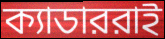
ক্যাডাররাই